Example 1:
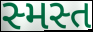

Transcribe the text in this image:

સ્મસ્ત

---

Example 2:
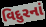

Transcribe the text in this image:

વિદુરનાં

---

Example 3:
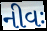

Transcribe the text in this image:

નીવઃ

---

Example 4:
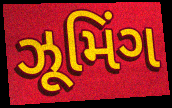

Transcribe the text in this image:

ઝૂમિંગ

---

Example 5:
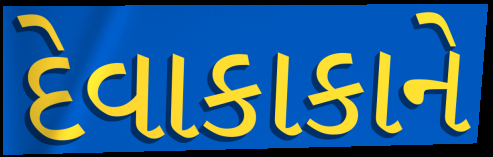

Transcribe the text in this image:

દેવાકાકાને